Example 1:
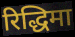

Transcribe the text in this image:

रिद्धिमा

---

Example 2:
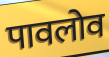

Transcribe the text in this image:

पावलोव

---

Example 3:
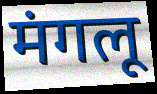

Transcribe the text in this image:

मंगलू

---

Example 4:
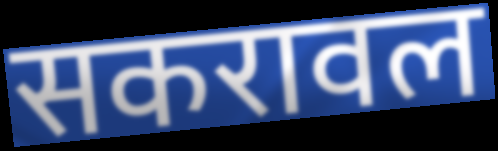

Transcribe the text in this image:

सकरावल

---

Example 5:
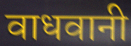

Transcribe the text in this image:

वाधवानी